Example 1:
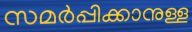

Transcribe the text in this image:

സമർപ്പിക്കാനുള്ള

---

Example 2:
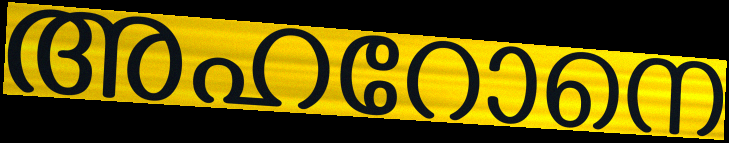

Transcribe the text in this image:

അഹറോനെ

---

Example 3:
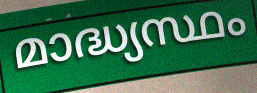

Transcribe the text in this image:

മാദ്ധ്യസ്ഥം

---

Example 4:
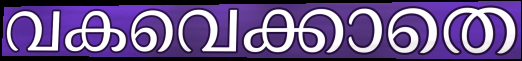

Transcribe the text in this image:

വകവെക്കാതെ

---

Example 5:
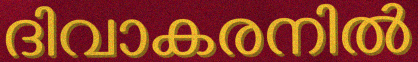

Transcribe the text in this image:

ദിവാകരനിൽ